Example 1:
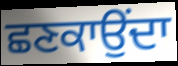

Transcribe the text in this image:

ਛਣਕਾਉਂਦਾ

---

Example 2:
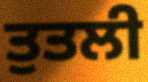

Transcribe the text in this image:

ਤੁਤਲੀ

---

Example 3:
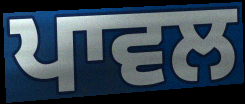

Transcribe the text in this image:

ਪਾਵਲ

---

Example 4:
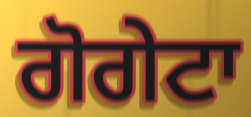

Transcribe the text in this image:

ਗੋਗੇਟਾ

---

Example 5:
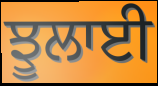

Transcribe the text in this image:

ਝੂਲਾਈ